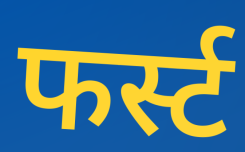
फर्स्ट